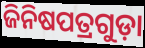
ଜିନିଷପତ୍ରଗୁଡ଼ା